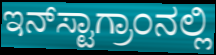
ಇನ್‌ಸ್ಟಾಗ್ರಾಂನಲ್ಲಿ